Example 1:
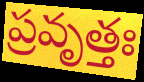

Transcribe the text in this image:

ప్రవృత్తః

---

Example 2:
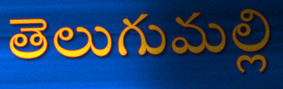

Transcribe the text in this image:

తెలుగుమల్లి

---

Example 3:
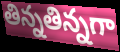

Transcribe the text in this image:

తిన్నతిన్నగా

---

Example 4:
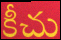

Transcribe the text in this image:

కీచు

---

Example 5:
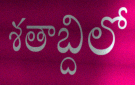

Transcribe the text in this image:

శతాబ్దిలో